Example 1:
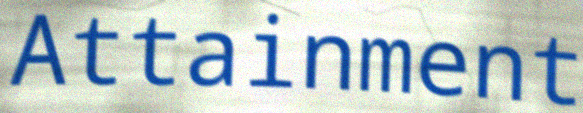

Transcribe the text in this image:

Attainment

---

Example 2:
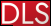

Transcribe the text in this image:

DLS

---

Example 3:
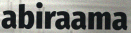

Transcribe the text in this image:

abiraama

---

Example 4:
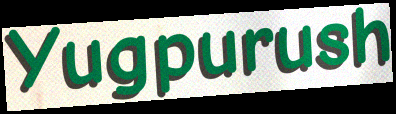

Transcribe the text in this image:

Yugpurush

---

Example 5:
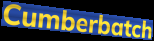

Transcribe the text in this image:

Cumberbatch